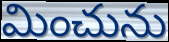
మించును